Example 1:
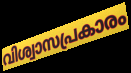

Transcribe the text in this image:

വിശ്വാസപ്രകാരം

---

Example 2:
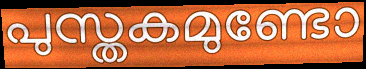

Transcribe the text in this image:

പുസ്തകമുണ്ടോ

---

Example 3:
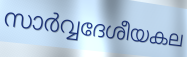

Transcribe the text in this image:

സാർവ്വദേശീയകല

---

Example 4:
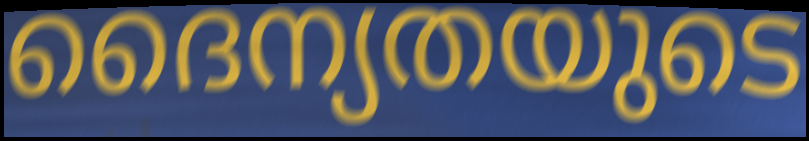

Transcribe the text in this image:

ദൈന്യതയുടെ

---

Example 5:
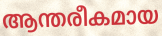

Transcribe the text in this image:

ആന്തരീകമായ